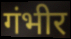
गंभीर